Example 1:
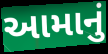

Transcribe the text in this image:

આમાનું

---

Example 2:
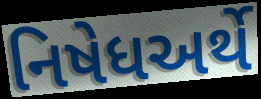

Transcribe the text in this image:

નિષેધઅર્થે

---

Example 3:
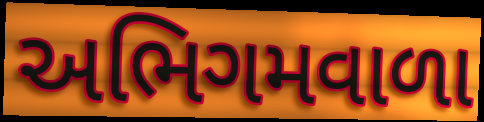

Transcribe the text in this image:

અભિગમવાળા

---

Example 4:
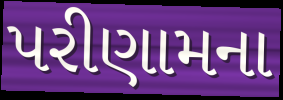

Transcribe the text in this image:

પરીણામના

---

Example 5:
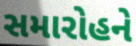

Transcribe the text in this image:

સમારોહને